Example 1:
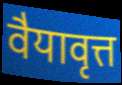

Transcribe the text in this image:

वैयावृत्त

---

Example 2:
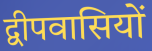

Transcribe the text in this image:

द्वीपवासियों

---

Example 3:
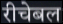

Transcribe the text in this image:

रीचेबल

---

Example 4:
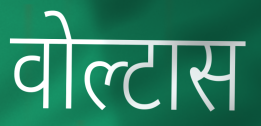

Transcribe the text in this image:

वोल्टास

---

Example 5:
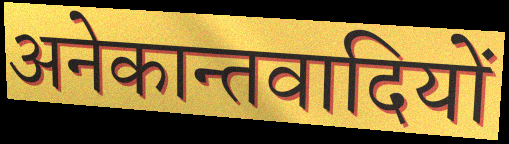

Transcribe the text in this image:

अनेकान्तवादियों